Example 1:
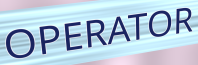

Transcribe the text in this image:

OPERATOR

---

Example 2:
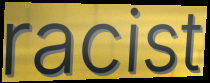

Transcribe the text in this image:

racist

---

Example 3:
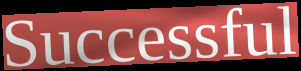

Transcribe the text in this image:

Successful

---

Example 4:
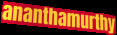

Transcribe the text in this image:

ananthamurthy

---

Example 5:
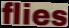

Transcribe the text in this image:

flies